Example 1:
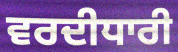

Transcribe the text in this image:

ਵਰਦੀਧਾਰੀ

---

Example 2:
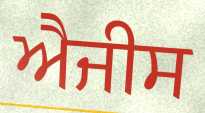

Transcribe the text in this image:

ਐਜੀਸ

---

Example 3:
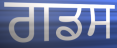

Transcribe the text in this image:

ਗਡਸ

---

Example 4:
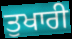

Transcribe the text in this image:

ਤੁਖਾਰੀ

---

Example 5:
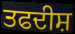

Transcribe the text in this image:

ਤਫਦੀਸ਼